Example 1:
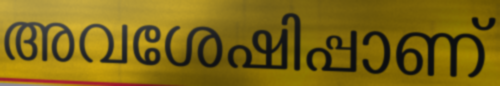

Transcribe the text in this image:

അവശേഷിപ്പാണ്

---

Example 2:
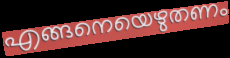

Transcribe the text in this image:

എങ്ങനെയെഴുതണം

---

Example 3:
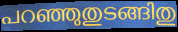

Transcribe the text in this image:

പറഞ്ഞുതുടങ്ങിതു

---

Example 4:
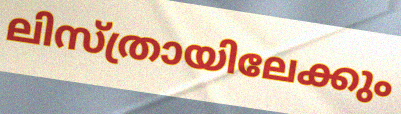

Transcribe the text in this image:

ലിസ്ത്രായിലേക്കും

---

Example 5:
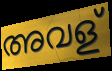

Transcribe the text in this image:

അവള്